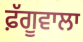
ਫ਼ੱਗੂਵਾਲਾ